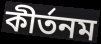
কীর্তনম